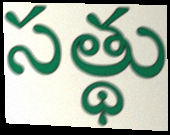
సత్థు